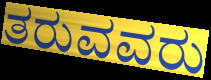
ತರುವವರು